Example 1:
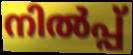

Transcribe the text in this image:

നിൽപ്പ്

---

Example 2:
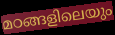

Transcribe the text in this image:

മഠങ്ങളിലെയും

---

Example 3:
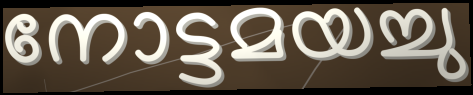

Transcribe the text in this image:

നോട്ടമയച്ചു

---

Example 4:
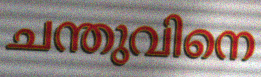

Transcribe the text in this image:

ചന്തുവിനെ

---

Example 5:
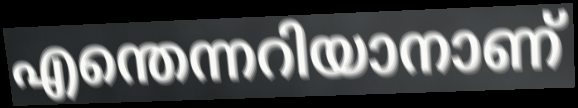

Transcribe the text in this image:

എന്തെന്നറിയാനാണ്